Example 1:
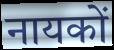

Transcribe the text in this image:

नायकों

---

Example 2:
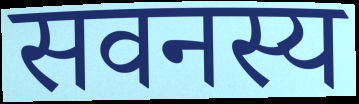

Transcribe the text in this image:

सवनस्य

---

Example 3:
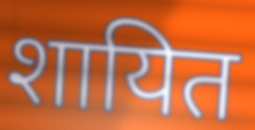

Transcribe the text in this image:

शायित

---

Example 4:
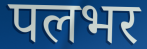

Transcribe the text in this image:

पलभर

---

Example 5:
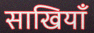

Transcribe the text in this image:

साखियाँ